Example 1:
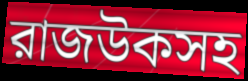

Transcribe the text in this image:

রাজউকসহ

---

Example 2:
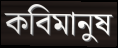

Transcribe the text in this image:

কবিমানুষ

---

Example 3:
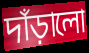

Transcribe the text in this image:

দাঁড়ালো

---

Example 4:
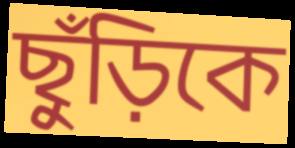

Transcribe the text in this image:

ছুঁড়িকে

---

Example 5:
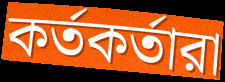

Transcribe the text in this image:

কর্তকর্তারা